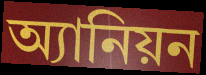
অ্যানিয়ন